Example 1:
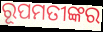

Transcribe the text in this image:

ରୂପମତୀଙ୍କର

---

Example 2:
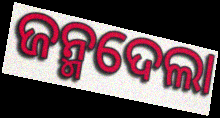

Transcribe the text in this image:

ଜନ୍ମଦେଲା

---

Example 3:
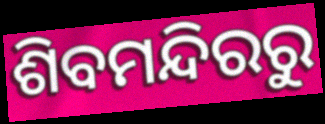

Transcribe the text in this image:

ଶିବମନ୍ଦିରରୁ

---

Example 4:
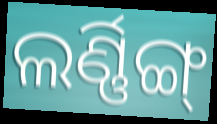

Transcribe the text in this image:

ଲର୍ଣ୍ଣିଙ୍ଗ୍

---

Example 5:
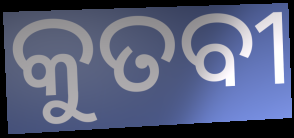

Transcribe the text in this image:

କୁତବୀ